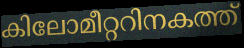
കിലോമീറ്ററിനകത്ത്